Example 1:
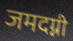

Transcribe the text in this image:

जमदग्नी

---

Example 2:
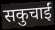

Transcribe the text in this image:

सकुचाईं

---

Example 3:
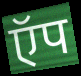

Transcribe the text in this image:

ऍप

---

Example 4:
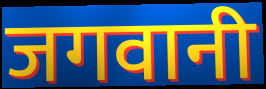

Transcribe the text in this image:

जगवानी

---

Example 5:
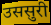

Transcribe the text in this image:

उससुरी